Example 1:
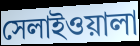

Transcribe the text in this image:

সেলাইওয়ালা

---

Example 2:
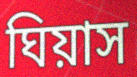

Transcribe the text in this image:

ঘিয়াস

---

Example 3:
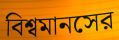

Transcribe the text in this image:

বিশ্বমানসের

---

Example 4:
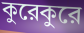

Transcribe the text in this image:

কুরেকুরে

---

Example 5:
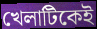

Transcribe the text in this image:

খেলাটিকেই